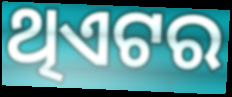
ଥିଏଟର